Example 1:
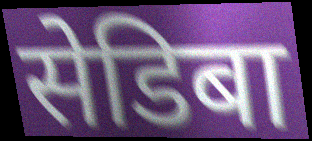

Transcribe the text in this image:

सेडिबा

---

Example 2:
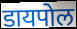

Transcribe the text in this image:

डायपोल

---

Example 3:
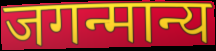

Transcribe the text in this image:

जगन्मान्य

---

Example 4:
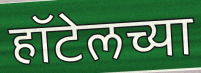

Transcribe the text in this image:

हॉटेलच्या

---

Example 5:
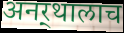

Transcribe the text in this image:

अनर्थालाच